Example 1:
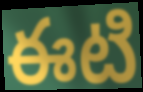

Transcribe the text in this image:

ఈటి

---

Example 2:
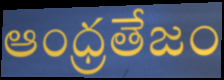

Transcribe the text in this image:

ఆంధ్రతేజం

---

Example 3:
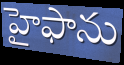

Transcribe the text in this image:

హైఫాను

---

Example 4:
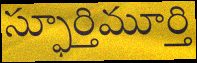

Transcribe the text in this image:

స్ఫూర్తిమూర్తి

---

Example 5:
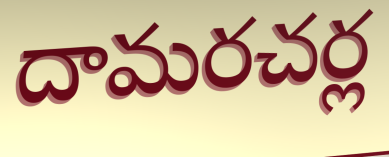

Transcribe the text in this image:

దామరచర్ల